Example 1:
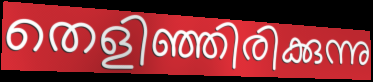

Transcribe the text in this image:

തെളിഞ്ഞിരിക്കുന്നു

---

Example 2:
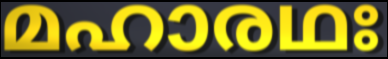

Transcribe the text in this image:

മഹാരഥഃ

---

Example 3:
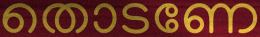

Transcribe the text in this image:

തൊടണേ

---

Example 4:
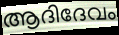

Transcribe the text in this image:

ആദിദേവം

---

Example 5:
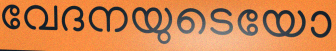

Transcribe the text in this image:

വേദനയുടെയോ